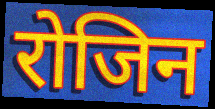
रोजिन